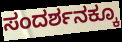
ಸಂದರ್ಶನಕ್ಕೂ